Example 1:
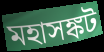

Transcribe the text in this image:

মহাসঙ্কট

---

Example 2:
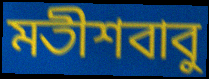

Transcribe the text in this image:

মতীশবাবু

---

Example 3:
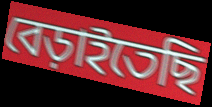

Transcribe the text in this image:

বেড়াইতেছি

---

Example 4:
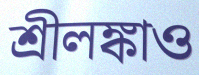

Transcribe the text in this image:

শ্রীলঙ্কাও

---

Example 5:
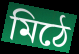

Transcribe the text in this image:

মিঠে